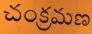
చంక్రమణ